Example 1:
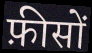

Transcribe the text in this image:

फ़ीसों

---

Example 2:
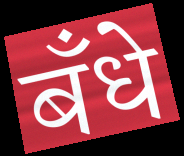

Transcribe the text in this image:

बँधे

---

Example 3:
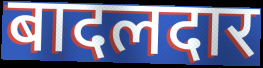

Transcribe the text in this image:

बादलदार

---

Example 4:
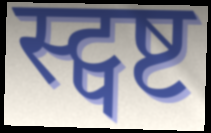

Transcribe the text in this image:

स्ट्पष्ट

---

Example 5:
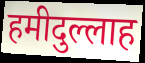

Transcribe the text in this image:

हमीदुल्लाह